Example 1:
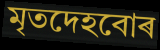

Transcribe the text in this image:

মৃতদেহবোৰ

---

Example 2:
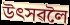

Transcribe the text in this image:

উৎসৱলৈ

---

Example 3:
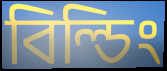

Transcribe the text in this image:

বিল্ডিং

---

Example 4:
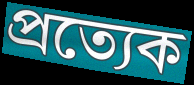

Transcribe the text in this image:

প্ৰত্য়েক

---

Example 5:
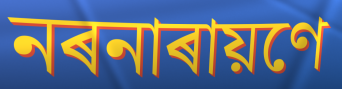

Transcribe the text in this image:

নৰনাৰায়ণে